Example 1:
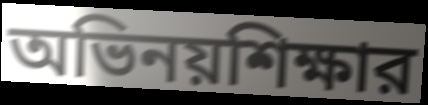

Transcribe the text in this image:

অভিনয়শিক্ষার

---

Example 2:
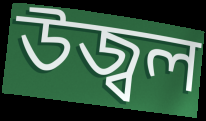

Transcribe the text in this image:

উজ্বল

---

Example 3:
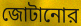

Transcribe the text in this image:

জোটানোর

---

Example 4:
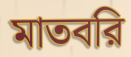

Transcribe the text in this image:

মাতবরি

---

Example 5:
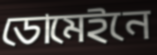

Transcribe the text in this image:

ডোমেইনে